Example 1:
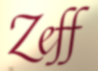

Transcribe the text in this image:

Zeff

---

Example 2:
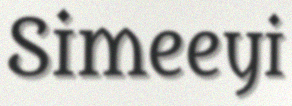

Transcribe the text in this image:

Simeeyi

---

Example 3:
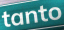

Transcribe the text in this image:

tanto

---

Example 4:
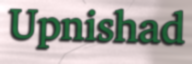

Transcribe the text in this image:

Upnishad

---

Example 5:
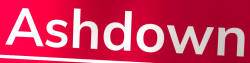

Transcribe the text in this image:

Ashdown